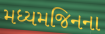
મધ્યમજિનના